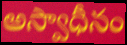
అస్వాధీనం